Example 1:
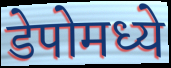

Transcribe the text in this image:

डेपोमध्ये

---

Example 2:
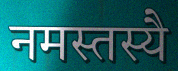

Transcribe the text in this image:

नमस्तस्यै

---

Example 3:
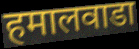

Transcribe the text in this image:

हमालवाडा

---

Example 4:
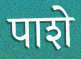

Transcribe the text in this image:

पाशे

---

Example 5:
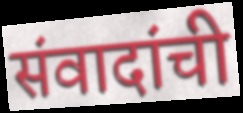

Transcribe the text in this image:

संवादांची